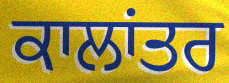
ਕਾਲਾਂਤਰ